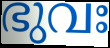
ഭുവഃ